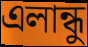
এলান্ধু